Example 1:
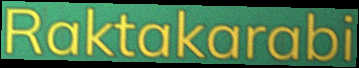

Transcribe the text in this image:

Raktakarabi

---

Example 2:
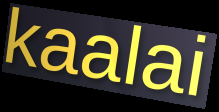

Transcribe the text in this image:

kaalai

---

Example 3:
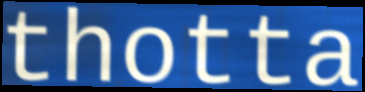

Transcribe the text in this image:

thotta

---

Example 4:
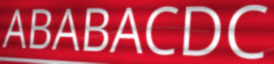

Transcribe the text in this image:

ABABACDC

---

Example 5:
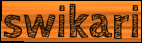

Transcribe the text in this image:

swikari